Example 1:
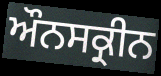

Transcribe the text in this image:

ਔਨਸਕ੍ਰੀਨ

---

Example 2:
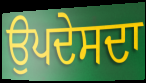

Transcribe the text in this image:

ਉਪਦੇਸਦਾ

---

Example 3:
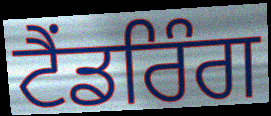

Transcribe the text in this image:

ਟੈਂਡਰਿੰਗ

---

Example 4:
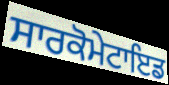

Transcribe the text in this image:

ਸਾਰਕੋਮੇਟਾਇਡ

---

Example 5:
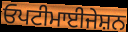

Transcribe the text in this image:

ਓਪਟੀਮਾਈਜੇਸ਼ਨ